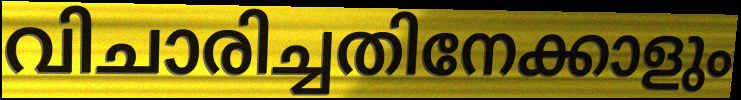
വിചാരിച്ചതിനേക്കാളും